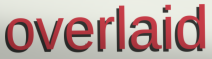
overlaid